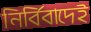
নির্বিবাদেই